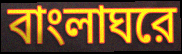
বাংলাঘরে